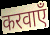
करवाएँ